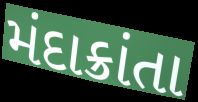
મંદાક્રાંતા